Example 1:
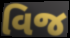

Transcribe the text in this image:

વિજ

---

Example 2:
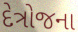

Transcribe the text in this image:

દેત્રોજના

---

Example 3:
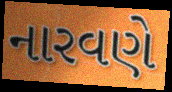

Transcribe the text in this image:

નારવણે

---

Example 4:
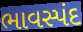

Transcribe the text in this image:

ભાવસ્પંદ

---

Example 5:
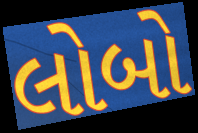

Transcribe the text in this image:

લોબો